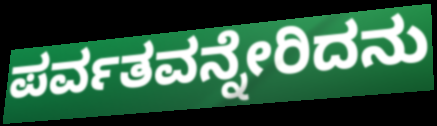
ಪರ್ವತವನ್ನೇರಿದನು